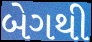
બેગથી